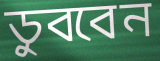
ডুববেন